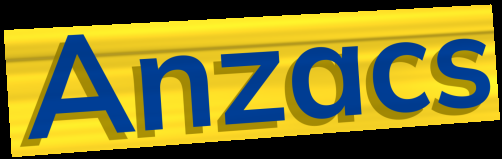
Anzacs